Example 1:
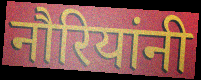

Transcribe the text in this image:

नौरियांनी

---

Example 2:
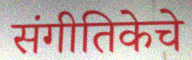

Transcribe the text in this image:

संगीतिकेचे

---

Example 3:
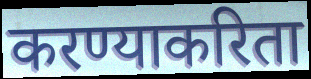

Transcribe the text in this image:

करण्याकरिता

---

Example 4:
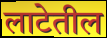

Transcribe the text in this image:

लाटेतील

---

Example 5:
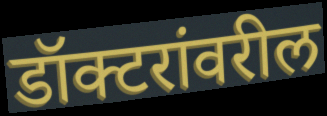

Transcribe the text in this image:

डॉक्टरांवरील